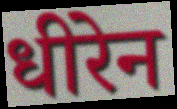
धीरेन